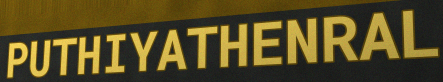
PUTHIYATHENRAL